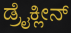
ಡ್ರೈಕ್ಲೀನ್